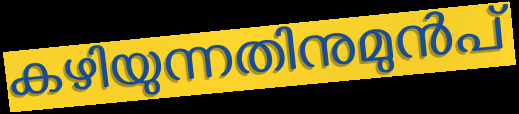
കഴിയുന്നതിനുമുൻപ്